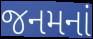
જનમનાં